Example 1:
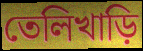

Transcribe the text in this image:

তেলিখাড়ি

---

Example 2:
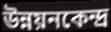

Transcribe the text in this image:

উন্নয়নকেন্দ্র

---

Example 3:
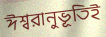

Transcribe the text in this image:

ঈশ্বরানুভূতিই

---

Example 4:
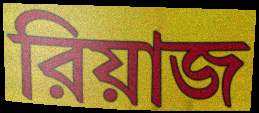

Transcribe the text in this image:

রিয়াজ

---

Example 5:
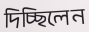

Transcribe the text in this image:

দিচ্ছিলেন